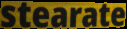
stearate